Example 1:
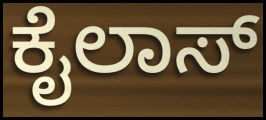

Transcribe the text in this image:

ಕೈಲಾಸ್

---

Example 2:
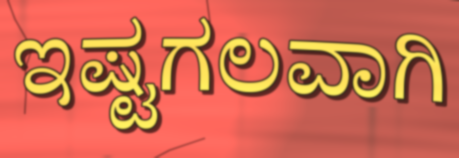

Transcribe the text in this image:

ಇಷ್ಟಗಲವಾಗಿ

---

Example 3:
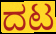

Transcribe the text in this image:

ದಟ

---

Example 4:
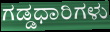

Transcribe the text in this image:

ಗಡ್ಡಧಾರಿಗಳು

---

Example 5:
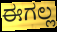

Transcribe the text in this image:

ಈಗಲ್ಲ